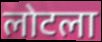
लोटला